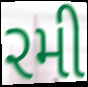
રમી